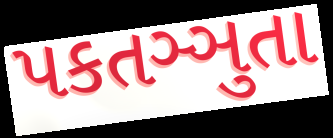
પકતઞ્ઞુતા